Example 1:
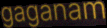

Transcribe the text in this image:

gaganam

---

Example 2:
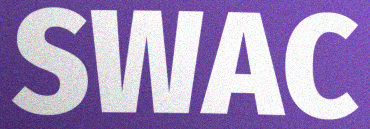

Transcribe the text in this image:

SWAC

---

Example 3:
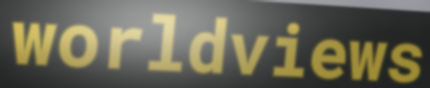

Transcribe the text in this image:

worldviews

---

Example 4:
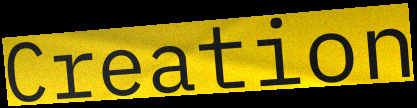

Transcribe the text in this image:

Creation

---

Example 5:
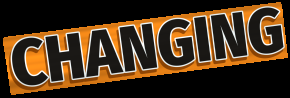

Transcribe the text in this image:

CHANGING